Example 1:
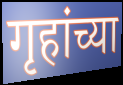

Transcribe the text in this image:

गृहांच्या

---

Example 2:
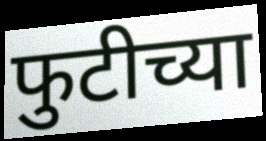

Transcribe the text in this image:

फुटीच्या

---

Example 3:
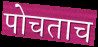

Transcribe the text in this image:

पोचताच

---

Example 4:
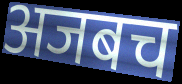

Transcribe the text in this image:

अजबच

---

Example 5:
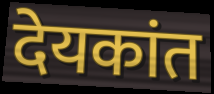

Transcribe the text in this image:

देयकांत